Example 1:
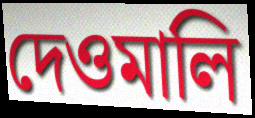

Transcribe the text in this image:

দেওমালি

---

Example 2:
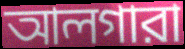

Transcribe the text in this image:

আলগারা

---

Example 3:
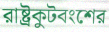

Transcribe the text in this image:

রাষ্ট্রকুটবংশের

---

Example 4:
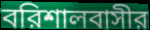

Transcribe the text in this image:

বরিশালবাসীর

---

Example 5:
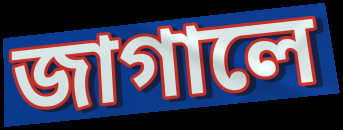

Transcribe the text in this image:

জাগালে